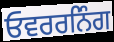
ਓਵਰਰਨਿੰਗ